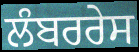
ਲੰਬਰਰੇਸ